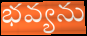
భవ్యను